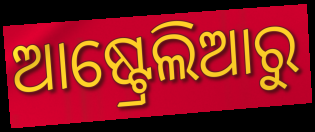
ଆଷ୍ଟ୍ରେଲିଆରୁ